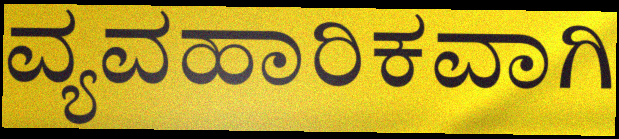
ವ್ಯವಹಾರಿಕವಾಗಿ